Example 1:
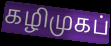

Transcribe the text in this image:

கழிமுகப்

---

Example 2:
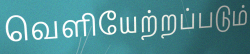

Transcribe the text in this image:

வெளியேற்றப்படும்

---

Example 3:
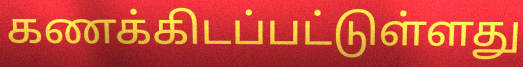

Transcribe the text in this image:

கணக்கிடப்பட்டுள்ளது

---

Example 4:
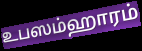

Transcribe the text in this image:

உபஸம்ஹாரம்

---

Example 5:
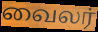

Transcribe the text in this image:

வைலர்